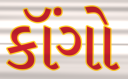
કૉંગો